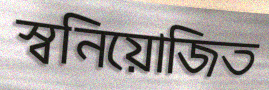
স্বনিয়োজিত